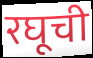
रघूची